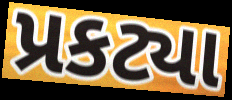
પ્રકટ્યા